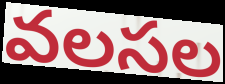
వలసల